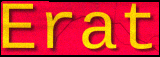
Erat